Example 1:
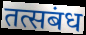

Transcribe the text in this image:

तत्सबंध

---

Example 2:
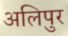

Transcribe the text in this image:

अलिपुर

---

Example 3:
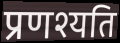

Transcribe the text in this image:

प्रणश्यति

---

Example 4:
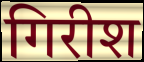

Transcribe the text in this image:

गिरीश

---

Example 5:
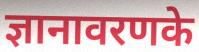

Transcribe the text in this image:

ज्ञानावरणके